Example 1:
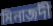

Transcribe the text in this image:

মিনাজদী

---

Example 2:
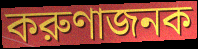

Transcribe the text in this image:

করুণাজনক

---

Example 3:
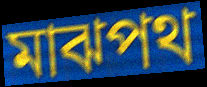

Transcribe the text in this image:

মাঝপথ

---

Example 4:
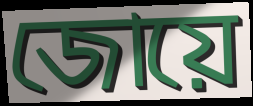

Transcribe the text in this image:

জোয়ে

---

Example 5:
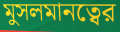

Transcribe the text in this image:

মুসলমানত্বের